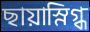
ছায়াস্নিগ্ধ